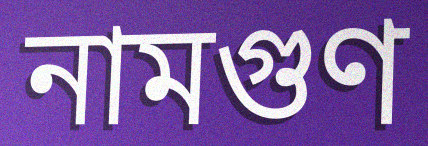
নামগুণ